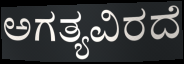
ಅಗತ್ಯವಿರದೆ